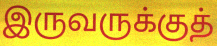
இருவருக்குத்